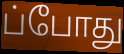
ப்போது